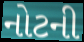
નોટની